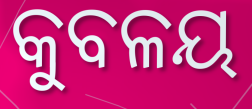
କୁବଳୟ